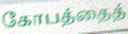
கோபத்தைத்